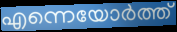
എന്നെയോർത്ത്